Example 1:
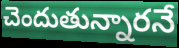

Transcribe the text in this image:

చెందుతున్నారనే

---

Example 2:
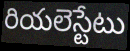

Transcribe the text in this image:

రియలెస్టేటు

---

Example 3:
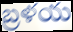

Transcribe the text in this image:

బ్రళయ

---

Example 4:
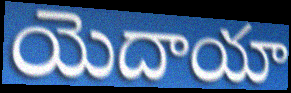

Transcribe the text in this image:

యెదాయా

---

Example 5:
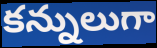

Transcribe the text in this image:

కన్నులుగా